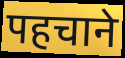
पहचाने